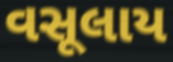
વસૂલાય